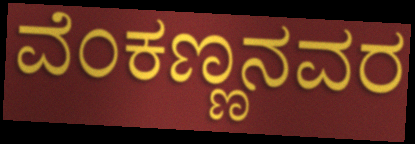
ವೆಂಕಣ್ಣನವರ